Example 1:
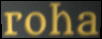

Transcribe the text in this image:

roha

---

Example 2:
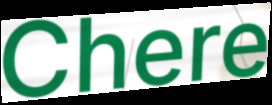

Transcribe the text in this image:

Chere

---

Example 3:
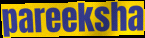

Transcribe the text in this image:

pareeksha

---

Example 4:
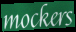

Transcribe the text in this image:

mockers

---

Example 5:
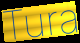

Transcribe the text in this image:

Tura